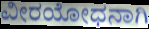
ವೀರಯೋಧನಾಗಿ